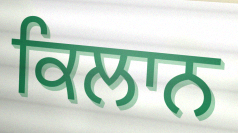
ਕਿਲਾਨ